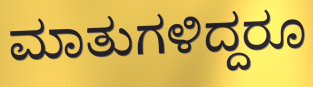
ಮಾತುಗಳಿದ್ದರೂ